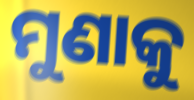
ମୁଣାକୁ